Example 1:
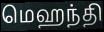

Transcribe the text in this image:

மெஹந்தி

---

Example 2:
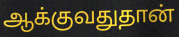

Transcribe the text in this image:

ஆக்குவதுதான்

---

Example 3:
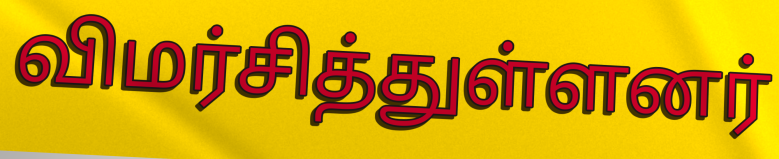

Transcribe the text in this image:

விமர்சித்துள்ளனர்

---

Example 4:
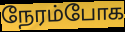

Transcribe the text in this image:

நேரம்போக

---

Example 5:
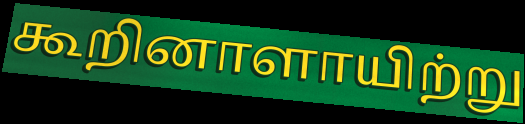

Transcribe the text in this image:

கூறினாளாயிற்று